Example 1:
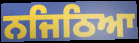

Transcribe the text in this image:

ਨਜਿਠਿਆ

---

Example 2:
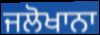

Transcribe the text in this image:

ਜਲੋਖਾਨਾ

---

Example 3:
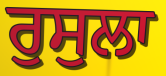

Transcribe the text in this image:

ਰੁਸੁਲਾ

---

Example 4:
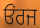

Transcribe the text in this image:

ਓਂਰਜ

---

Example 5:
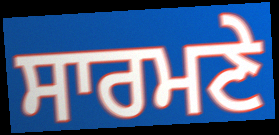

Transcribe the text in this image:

ਸਾਰਮਣੇ